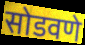
सोडवणे